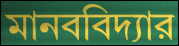
মানববিদ্যার